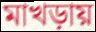
মাখড়ায়